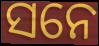
ସନେ